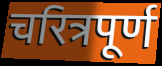
चरित्रपूर्ण